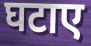
घटाए